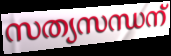
സത്യസന്ധന്